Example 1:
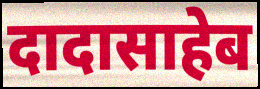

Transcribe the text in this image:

दादासाहेब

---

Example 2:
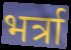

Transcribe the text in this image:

भर्त्रा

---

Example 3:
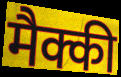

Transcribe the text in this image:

मैक्की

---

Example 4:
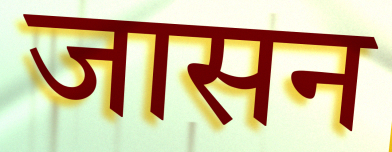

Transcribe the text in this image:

जासन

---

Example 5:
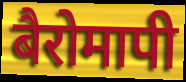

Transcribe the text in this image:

बैरोमापी